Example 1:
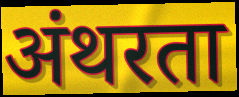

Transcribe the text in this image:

अंथरता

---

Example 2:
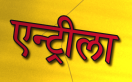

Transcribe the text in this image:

एन्ट्रीला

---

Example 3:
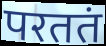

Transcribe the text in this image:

परततं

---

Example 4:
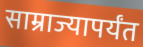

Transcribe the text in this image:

साम्राज्यापर्यंत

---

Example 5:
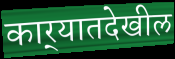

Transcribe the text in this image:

कार्यातदेखील